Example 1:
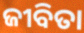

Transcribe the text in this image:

ଜୀବିତା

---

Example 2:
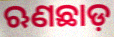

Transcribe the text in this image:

ଋଣଛାଡ଼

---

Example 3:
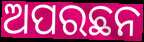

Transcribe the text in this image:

ଅପରଛନ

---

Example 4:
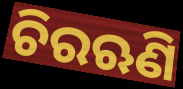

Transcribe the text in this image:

ଚିରଋଣି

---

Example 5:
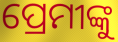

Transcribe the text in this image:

ପ୍ରେମୀଙ୍କୁ